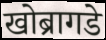
खोब्रागडे